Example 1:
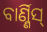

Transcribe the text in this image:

ବାର୍ଣ୍ଣିସ୍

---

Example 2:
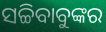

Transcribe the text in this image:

ସଚ୍ଚିବାବୁଙ୍କର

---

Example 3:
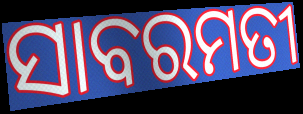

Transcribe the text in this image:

ସାବରମତୀ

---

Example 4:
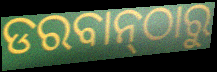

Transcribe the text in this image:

ଡରବାନ୍‌ଠାରୁ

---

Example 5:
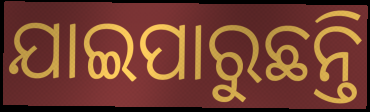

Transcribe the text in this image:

ଯାଇପାରୁଛନ୍ତି